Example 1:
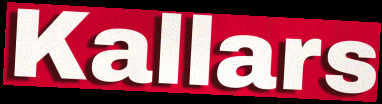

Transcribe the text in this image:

Kallars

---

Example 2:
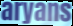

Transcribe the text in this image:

aryans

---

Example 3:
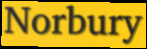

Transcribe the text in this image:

Norbury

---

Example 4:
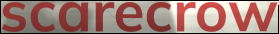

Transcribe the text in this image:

scarecrow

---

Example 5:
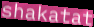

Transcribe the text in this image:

shakatat